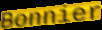
Bonnier